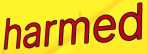
harmed